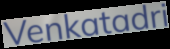
Venkatadri